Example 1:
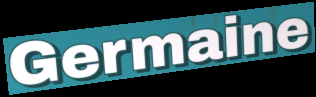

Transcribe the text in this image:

Germaine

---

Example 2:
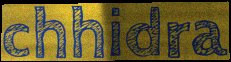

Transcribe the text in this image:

chhidra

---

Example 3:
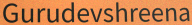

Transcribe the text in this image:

Gurudevshreena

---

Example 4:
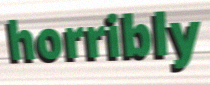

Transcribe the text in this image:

horribly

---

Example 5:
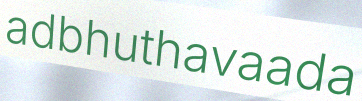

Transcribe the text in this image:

adbhuthavaada